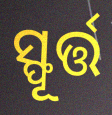
ସ୍ଫୂର୍ତ୍ତ